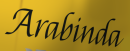
Arabinda